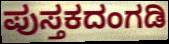
ಪುಸ್ತಕದಂಗಡಿ